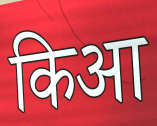
किआ